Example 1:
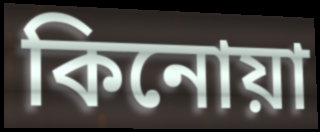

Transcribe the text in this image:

কিনোয়া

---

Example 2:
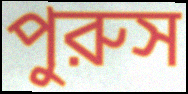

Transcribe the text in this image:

পুরুস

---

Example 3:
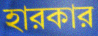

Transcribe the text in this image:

হারকার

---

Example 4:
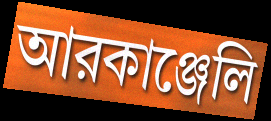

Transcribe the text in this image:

আরকাঞ্জেলি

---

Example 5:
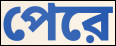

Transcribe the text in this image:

পেরে